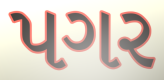
પગર